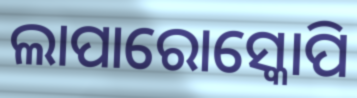
ଲାପାରୋସ୍କୋପି